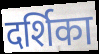
दर्शिका